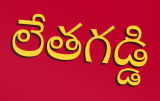
లేతగడ్డి